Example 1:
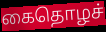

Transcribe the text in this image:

கைதொழச்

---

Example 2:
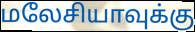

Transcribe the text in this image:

மலேசியாவுக்கு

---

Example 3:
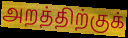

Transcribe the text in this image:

அறத்திற்குக்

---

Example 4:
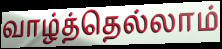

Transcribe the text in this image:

வாழ்த்தெல்லாம்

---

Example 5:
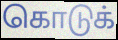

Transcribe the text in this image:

கொடுக்